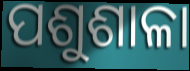
ପଶୁଶାଳା